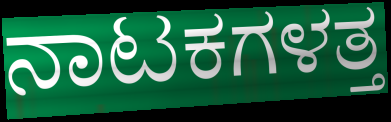
ನಾಟಕಗಳತ್ತ